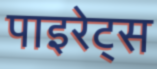
पाइरेट्स